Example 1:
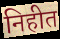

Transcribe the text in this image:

निहीत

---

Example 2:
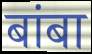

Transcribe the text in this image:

बांबा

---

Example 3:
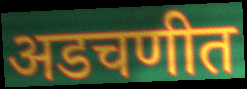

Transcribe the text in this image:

अडचणीत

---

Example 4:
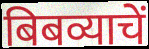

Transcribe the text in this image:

बिबव्याचें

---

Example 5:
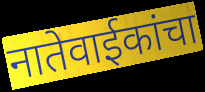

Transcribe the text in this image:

नातेवाईकांचा